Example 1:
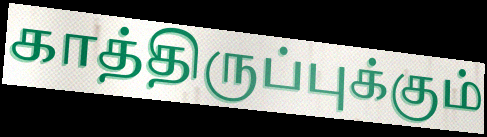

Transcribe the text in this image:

காத்திருப்புக்கும்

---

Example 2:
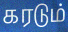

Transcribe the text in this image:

கரடும்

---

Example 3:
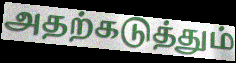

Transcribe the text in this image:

அதற்கடுத்தும்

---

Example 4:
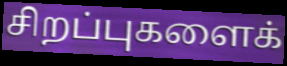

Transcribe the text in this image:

சிறப்புகளைக்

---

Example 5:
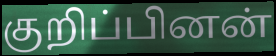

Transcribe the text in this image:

குறிப்பினன்